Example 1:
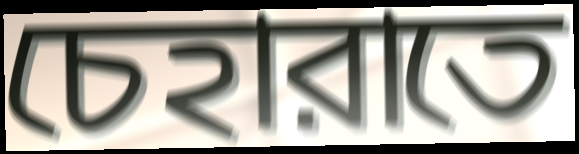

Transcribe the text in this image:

চেহারাতে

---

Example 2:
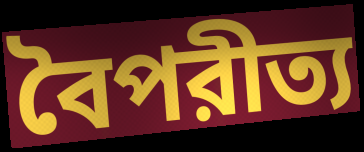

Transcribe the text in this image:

বৈপরীত্য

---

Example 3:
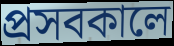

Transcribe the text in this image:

প্রসবকালে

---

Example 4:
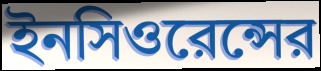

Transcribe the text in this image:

ইনসিওরেন্সের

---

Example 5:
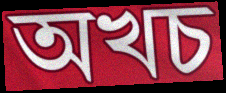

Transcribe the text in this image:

অখচ